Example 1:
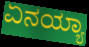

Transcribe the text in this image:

ಏನಯ್ಯಾ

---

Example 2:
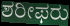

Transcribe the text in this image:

ಶರೀಫರು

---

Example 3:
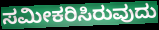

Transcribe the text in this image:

ಸಮೀಕರಿಸಿರುವುದು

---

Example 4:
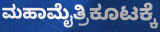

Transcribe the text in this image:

ಮಹಾಮೈತ್ರಿಕೂಟಕ್ಕೆ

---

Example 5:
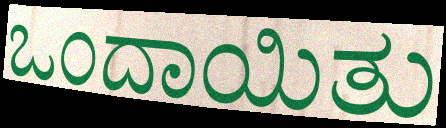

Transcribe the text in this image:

ಒಂದಾಯಿತು